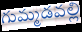
గుమ్మడవల్లి